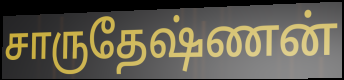
சாருதேஷ்ணன்